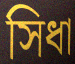
সিধা